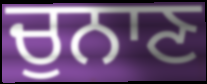
ਚੁਨਾਣ